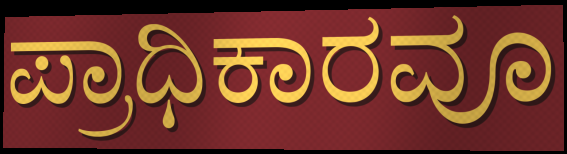
ಪ್ರಾಧಿಕಾರವೂ